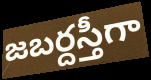
జబర్దస్తీగా